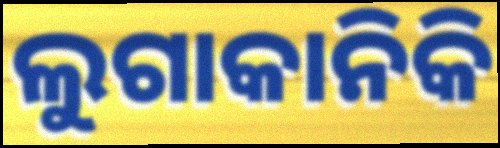
ଲୁଗାକାନିକି